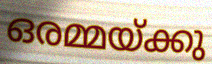
ഒരമ്മയ്ക്കു